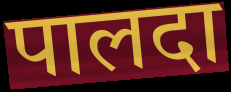
पालदा